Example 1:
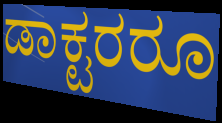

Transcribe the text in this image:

ಡಾಕ್ಟರರೂ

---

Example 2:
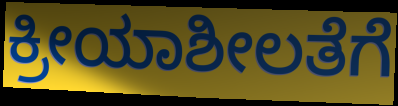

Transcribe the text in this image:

ಕ್ರೀಯಾಶೀಲತೆಗೆ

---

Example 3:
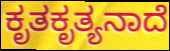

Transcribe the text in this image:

ಕೃತಕೃತ್ಯನಾದೆ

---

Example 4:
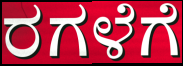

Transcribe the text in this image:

ರಗಳೆಗೆ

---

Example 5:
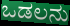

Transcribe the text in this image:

ಒಡಲನು